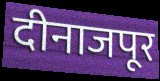
दीनाजपूर